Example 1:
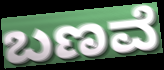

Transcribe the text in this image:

ಬಣವೆ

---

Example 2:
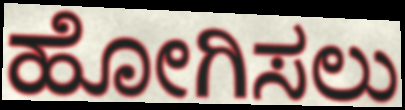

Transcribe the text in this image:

ಹೋಗಿಸಲು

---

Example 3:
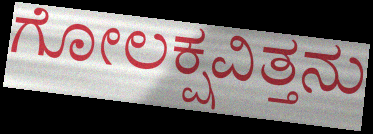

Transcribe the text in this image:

ಗೋಲಕ್ಷವಿತ್ತನು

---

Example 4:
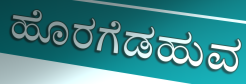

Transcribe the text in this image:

ಹೊರಗೆಡಹುವ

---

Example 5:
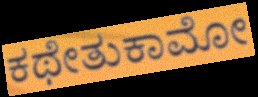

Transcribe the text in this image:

ಕಥೇತುಕಾಮೋ